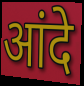
आंदे